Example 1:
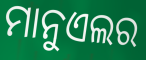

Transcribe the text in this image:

ମାନୁଏଲର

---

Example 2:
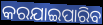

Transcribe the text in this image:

କରଯାଇପାରିବ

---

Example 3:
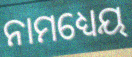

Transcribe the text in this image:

ନାମଧ୍ୟେୟ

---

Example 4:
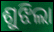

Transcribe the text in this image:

ଶୁଝିଲା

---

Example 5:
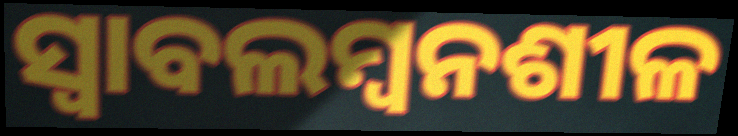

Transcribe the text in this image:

ସ୍ୱାବଲମ୍ୱନଶୀଳ